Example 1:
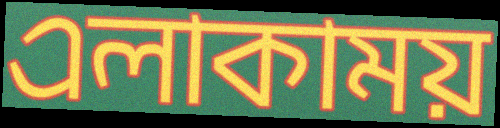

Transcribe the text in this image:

এলাকাময়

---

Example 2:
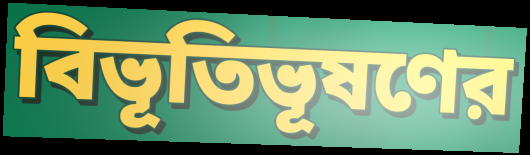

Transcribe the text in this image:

বিভূতিভূষণের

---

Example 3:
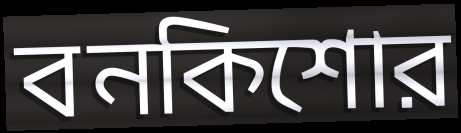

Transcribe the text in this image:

বনকিশোর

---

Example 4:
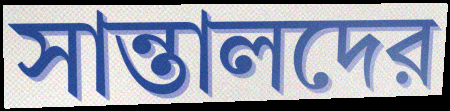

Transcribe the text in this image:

সান্তালদের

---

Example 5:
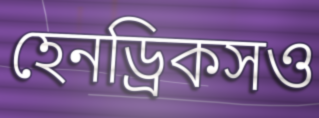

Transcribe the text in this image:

হেনড্রিকসও